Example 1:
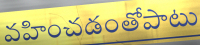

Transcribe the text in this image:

వహించడంతోపాటు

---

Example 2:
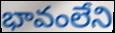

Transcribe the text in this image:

భావంలేని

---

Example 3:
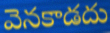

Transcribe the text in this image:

వెనకాడదు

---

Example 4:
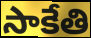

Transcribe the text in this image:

సాకేతి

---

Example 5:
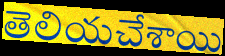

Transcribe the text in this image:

తెలియచేశాయి